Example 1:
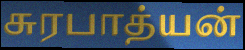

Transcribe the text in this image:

சுரபாத்யன்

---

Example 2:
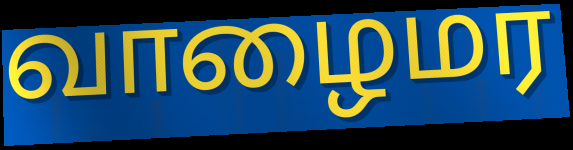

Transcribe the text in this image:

வாழைமர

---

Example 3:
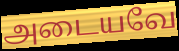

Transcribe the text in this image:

அடையவே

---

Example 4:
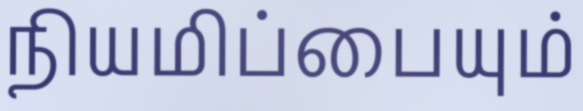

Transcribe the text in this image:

நியமிப்பையும்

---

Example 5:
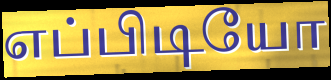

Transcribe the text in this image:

எப்பிடியோ